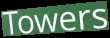
Towers